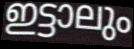
ഇട്ടാലും